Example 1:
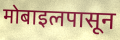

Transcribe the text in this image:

मोबाइलपासून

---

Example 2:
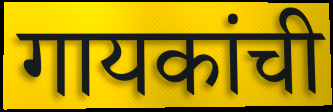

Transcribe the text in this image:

गायकांची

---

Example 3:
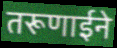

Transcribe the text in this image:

तरूणाईने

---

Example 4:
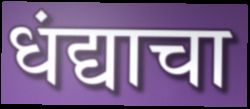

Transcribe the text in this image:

धंद्याचा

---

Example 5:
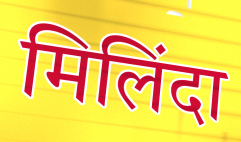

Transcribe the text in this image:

मिलिंदा